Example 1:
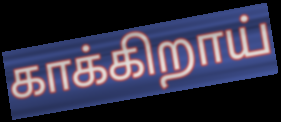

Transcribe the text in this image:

காக்கிறாய்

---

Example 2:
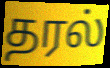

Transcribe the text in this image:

தரல்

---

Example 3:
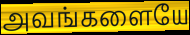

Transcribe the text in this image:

அவங்களையே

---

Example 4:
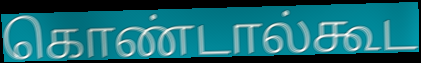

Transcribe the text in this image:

கொண்டால்கூட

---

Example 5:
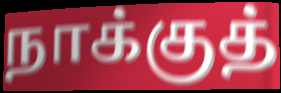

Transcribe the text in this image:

நாக்குத்